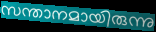
സന്താനമായിരുന്നു